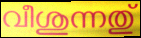
വീശുന്നതു്